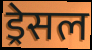
ड्रेसल